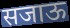
सजाऊ